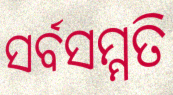
ସର୍ବସମ୍ମତି